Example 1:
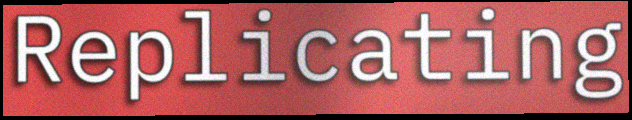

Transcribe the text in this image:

Replicating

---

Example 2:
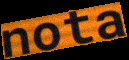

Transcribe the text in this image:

nota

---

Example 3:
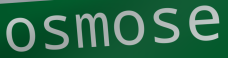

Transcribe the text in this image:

osmose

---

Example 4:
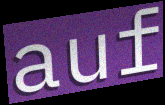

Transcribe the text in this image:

auf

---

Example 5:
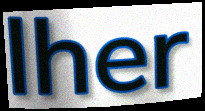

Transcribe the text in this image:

lher